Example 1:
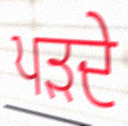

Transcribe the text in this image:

ਪੜਦੇ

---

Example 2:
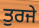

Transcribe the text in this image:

ਤੁਰਜੇ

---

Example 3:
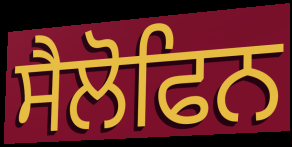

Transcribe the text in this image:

ਸੈਲੋਫਿਨ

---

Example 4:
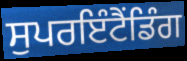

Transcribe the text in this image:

ਸੁਪਰਇੰਟੈਂਡਿੰਗ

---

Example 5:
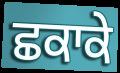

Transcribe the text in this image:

ਛਕਾਕੇ